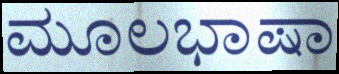
ಮೂಲಭಾಷಾ